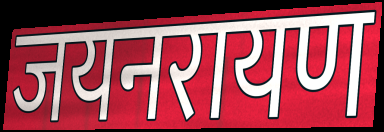
जयनरायण